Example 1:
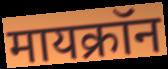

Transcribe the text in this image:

मायक्रॉन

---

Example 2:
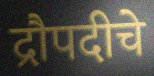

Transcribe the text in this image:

द्रौपदीचे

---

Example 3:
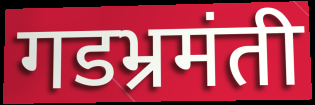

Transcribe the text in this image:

गडभ्रमंती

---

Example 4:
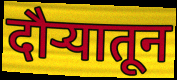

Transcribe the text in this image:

दौर्‍यातून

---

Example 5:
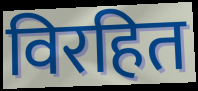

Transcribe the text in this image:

विरहित